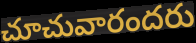
చూచువారందరు